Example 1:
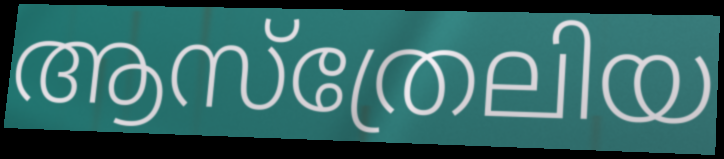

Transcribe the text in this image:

ആസ്ത്രേലിയ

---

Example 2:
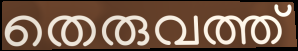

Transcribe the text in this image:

തെരുവത്ത്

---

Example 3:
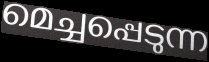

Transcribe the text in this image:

മെച്ചപ്പെടുന്ന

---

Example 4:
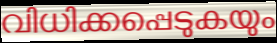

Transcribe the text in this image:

വിധിക്കപ്പെടുകയും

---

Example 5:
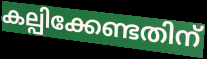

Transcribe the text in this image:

കല്പിക്കേണ്ടതിന്